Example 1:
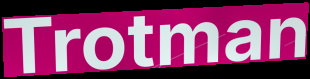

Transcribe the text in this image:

Trotman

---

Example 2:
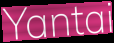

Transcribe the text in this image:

Yantai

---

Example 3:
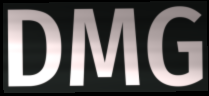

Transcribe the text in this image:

DMG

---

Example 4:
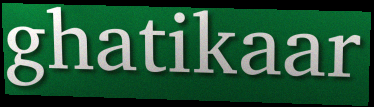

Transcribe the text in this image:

ghatikaar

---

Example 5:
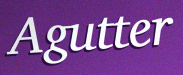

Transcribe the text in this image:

Agutter